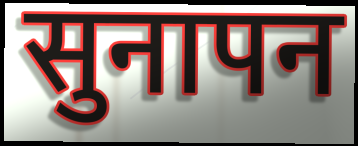
सुनापन